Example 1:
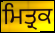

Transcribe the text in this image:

ਮਿਤ੍ਰਕ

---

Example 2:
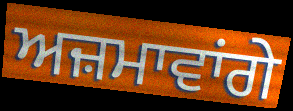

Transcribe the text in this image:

ਅਜ਼ਮਾਵਾਂਗੇ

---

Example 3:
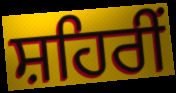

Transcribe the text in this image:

ਸ਼ਹਿਰੀਂ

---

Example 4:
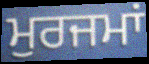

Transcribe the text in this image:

ਮੁਰਜਮਾਂ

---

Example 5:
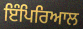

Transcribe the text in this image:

ਇੰਪਿਰਿਆਲ